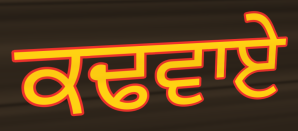
ਕਢਵਾਏ